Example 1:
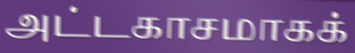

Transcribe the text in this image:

அட்டகாசமாகக்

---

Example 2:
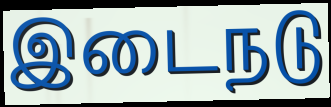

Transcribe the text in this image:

இடைநடு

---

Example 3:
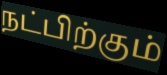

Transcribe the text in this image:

நட்பிற்கும்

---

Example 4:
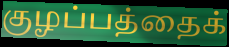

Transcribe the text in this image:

குழப்பத்தைக்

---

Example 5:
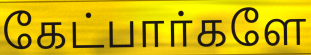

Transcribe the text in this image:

கேட்பார்களே